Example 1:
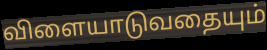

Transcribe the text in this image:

விளையாடுவதையும்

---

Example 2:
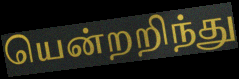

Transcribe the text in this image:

யென்றறிந்து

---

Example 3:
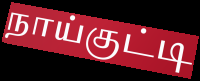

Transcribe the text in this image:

நாய்குட்டி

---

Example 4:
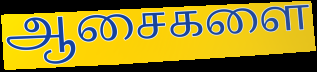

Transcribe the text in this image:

ஆசைகளை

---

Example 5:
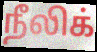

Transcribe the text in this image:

நீலிக்